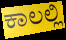
ಕಾಲಲ್ಲಿ